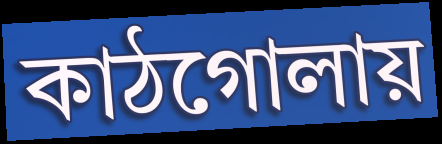
কাঠগোলায়